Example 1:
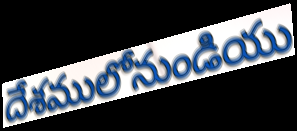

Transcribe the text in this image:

దేశములోనుండియు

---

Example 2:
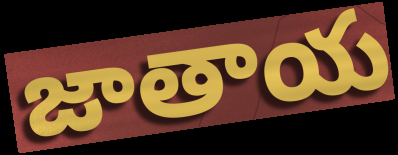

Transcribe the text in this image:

జాతాయ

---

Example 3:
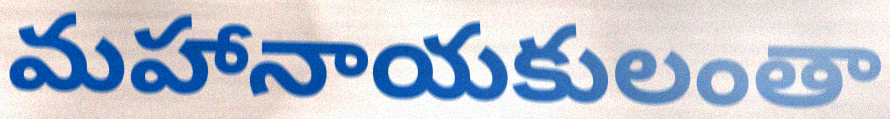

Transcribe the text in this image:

మహానాయకులంతా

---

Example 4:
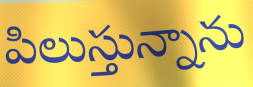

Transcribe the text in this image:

పిలుస్తున్నాను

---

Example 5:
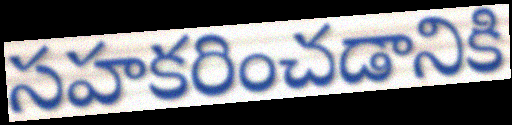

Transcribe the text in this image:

సహకరించడానికి